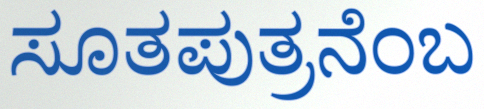
ಸೂತಪುತ್ರನೆಂಬ